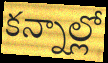
కన్నాల్లో